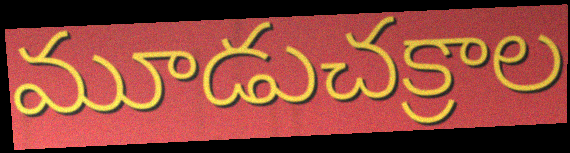
మూడుచక్రాల